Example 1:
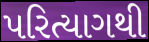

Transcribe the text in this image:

પરિત્યાગથી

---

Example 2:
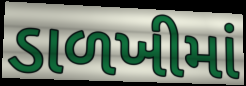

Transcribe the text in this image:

ડાળખીમાં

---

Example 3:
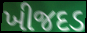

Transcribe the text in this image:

ખીજદડ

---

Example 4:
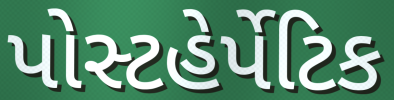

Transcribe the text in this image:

પોસ્ટહેર્પેટિક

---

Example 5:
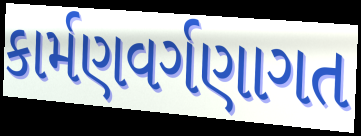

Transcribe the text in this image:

કાર્મણવર્ગણાગત